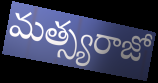
మత్స్యరాజో